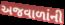
અજવાળાંની